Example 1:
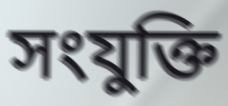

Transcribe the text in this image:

সংযুক্তি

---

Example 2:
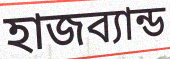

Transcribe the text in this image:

হাজব্যান্ড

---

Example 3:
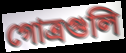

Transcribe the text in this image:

গোত্রগুলি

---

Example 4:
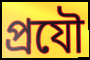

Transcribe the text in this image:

প্রযৌ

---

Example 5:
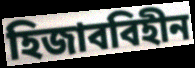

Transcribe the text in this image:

হিজাববিহীন